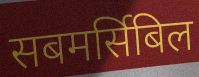
सबमर्सिबिल